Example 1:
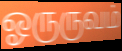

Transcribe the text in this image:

ஓருருவம்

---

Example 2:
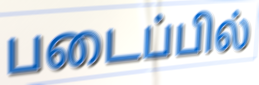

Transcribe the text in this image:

படைப்பில்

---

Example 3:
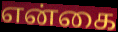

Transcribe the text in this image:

என்கை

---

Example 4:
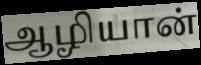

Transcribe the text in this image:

ஆழியான்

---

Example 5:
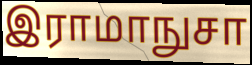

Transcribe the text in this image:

இராமாநுசா